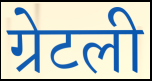
ग्रेटली